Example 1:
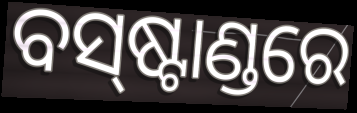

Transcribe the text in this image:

ବସ୍‍ଷ୍ଟାଣ୍ଡରେ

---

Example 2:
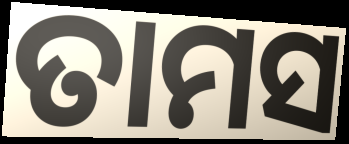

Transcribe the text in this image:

ତାମସ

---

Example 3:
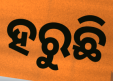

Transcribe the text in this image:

ହରୁଛି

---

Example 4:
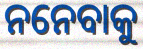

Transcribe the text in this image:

ନନେବାକୁ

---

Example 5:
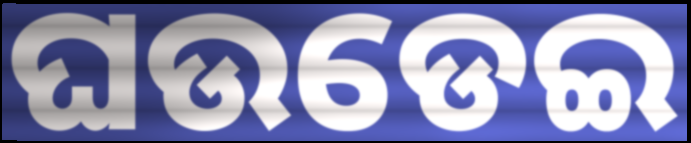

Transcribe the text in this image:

ଘଉଡେଇ